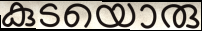
കുടയൊരു